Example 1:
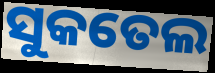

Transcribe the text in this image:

ସୁକତେଲ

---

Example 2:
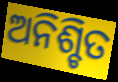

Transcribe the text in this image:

ଅନିଶ୍ଚିତ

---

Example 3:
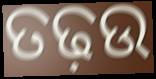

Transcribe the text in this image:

ତଢ଼ଉ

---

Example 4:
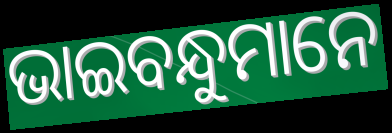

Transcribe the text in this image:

ଭାଇବନ୍ଧୁମାନେ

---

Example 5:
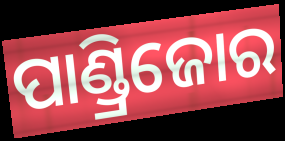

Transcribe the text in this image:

ପାଣ୍ଡ୍ରିଜୋର